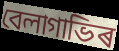
বেলাগাভিৰ